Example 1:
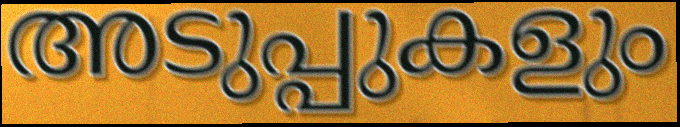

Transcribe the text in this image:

അടുപ്പുകളും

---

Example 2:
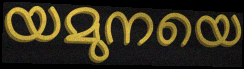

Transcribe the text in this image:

യമുനയെ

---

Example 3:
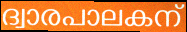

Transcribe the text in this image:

ദ്വാരപാലകന്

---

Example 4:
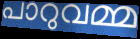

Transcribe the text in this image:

പാറുവമ്മ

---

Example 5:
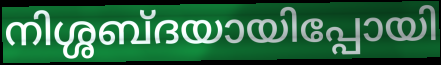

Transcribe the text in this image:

നിശ്ശബ്ദയായിപ്പോയി